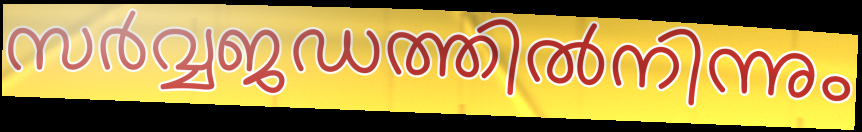
സർവ്വജഡത്തിൽനിന്നും